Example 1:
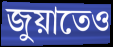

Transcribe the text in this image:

জুয়াতেও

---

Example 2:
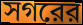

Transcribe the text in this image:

সগরের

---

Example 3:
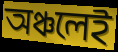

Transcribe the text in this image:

অঞ্চলেই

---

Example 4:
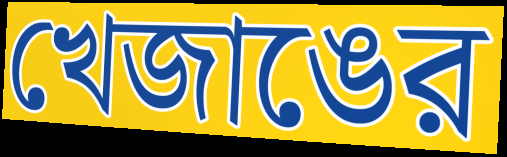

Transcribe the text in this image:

খেজাঙের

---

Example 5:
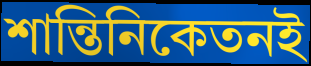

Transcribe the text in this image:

শান্তিনিকেতনই